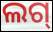
ଲଗ୍